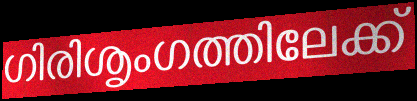
ഗിരിശൃംഗത്തിലേക്ക്